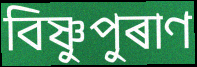
বিষ্ণুপুৰাণ